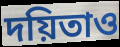
দয়িতাও